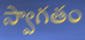
స్వాగతం